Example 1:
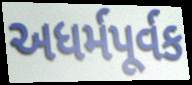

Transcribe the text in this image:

અધર્મપૂર્વક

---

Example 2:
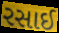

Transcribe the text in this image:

રસાઈ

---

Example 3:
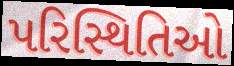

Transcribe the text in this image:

પરિસ્થિતિઓ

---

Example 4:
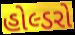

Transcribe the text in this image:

હોલ્ડરો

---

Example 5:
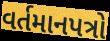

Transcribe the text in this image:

વર્તમાનપત્રો